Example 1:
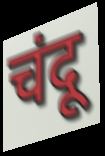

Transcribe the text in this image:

चंदू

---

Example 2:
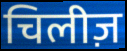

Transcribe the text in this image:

चिलीज़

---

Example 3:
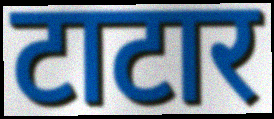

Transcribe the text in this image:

टाटार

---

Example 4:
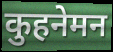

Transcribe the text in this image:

कुहनेमन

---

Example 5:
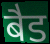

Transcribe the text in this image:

बैड